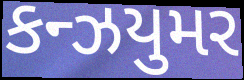
કન્ઝયુમર